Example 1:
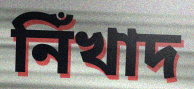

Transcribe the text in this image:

নিঁখাদ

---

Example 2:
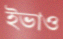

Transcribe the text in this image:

ইভাও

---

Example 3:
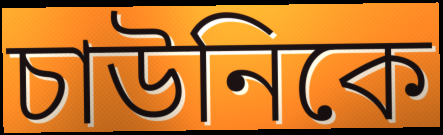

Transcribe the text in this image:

চাউনিকে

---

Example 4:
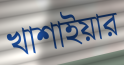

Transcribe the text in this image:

খাশাইয়ার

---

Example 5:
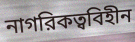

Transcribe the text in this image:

নাগরিকত্ববিহীন